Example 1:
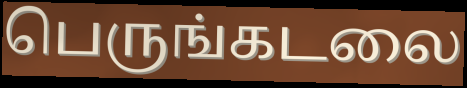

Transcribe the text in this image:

பெருங்கடலை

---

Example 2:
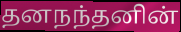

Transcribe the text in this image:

தனநந்தனின்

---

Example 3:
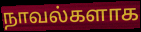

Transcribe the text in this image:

நாவல்களாக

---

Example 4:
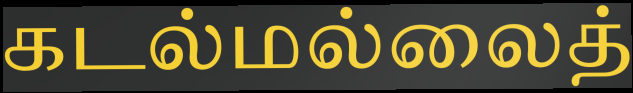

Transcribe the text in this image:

கடல்மல்லைத்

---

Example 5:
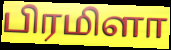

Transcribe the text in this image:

பிரமிளா